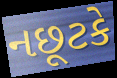
નછૂટકે